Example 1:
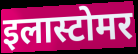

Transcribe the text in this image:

इलास्टोमर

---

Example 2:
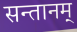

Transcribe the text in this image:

सन्तानम्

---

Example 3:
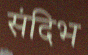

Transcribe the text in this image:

संदिभ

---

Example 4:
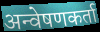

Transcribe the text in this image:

अन्वेषणकर्ता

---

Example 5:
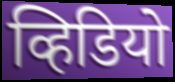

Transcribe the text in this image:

व्हिडियो